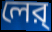
লের্